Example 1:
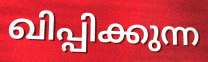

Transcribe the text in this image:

ഖിപ്പിക്കുന്ന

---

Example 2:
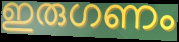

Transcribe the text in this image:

ഇരുഗണം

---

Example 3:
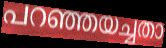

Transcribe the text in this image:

പറഞ്ഞയച്ചതാ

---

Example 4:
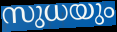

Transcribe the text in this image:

സുധയും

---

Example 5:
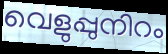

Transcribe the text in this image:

വെളുപ്പുനിറം